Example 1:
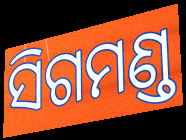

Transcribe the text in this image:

ସିଗମଣ୍ଡ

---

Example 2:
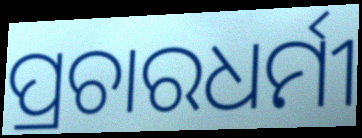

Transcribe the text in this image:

ପ୍ରଚାରଧର୍ମୀ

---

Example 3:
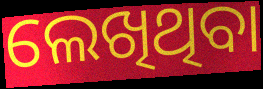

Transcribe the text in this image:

ଲେଖିଥିବା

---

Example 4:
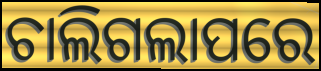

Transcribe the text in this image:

ଚାଲିଗଲାପରେ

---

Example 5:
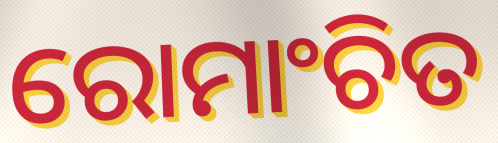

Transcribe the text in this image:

ରୋମାଂଚିତ